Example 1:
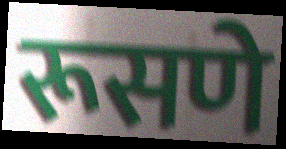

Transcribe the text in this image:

रूसणे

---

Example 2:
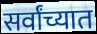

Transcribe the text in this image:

सर्वांच्यात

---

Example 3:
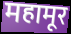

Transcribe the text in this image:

महामूर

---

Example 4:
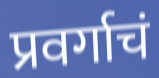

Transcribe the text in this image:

प्रवर्गाचं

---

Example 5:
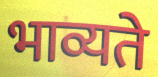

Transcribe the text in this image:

भाव्यते